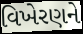
વિખેરણને